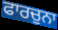
ਫਾਰਚੁਨਾ